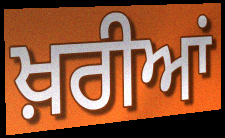
ਖ਼ਰੀਆਂ